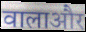
वालाऔर